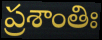
ప్రశాంతిః